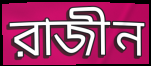
রাজীন